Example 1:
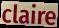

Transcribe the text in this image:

claire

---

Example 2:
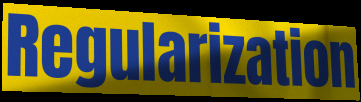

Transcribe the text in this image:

Regularization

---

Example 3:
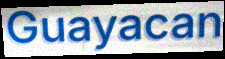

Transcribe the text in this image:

Guayacan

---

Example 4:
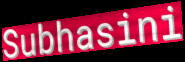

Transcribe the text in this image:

Subhasini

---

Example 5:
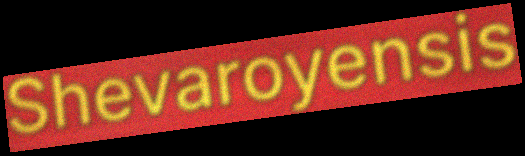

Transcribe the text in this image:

Shevaroyensis